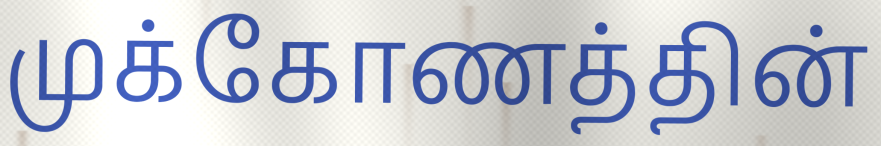
முக்கோணத்தின்